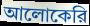
আলোকেরি